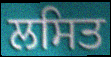
ਲਸਿਤ